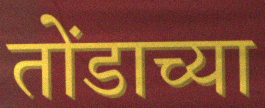
तोंडाच्या